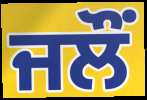
ਜਲੌਂ